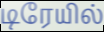
டிரேயில்